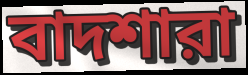
বাদশারা